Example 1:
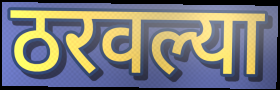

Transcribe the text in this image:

ठरवल्या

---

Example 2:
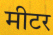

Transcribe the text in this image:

मीटर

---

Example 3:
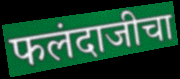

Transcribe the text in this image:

फलंदाजीचा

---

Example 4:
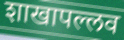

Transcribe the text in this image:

शाखापल्लव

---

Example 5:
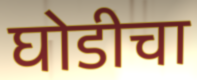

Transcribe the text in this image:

घोडीचा